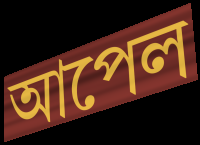
আপেল